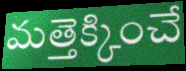
మత్తెక్కించే